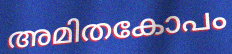
അമിതകോപം